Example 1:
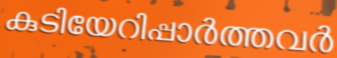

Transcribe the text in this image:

കുടിയേറിപ്പാർത്തവർ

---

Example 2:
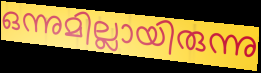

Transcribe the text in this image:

ഒന്നുമില്ലായിരുന്നു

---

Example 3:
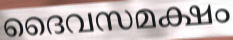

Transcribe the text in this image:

ദൈവസമക്ഷം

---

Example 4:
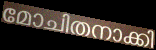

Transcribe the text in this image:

മോചിതനാക്കി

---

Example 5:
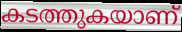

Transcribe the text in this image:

കടത്തുകയാണ്